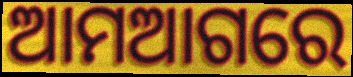
ଆମଆଗରେ